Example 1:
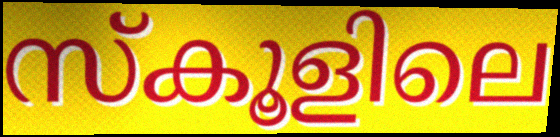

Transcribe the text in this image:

സ്കൂളിലെ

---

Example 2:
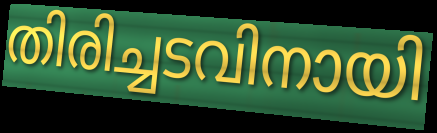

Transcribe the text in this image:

തിരിച്ചടവിനായി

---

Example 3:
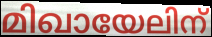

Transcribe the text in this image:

മിഖായേലിന്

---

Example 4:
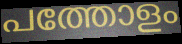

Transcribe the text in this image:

പത്തോളം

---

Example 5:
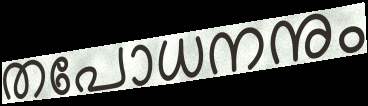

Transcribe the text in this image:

തപോധനനും